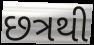
છત્રથી